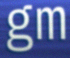
gm